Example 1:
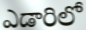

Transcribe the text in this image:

ఎడారిలో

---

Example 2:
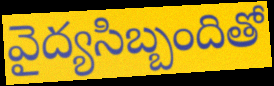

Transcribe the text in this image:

వైద్యసిబ్బందితో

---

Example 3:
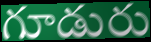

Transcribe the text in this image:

గూడురు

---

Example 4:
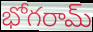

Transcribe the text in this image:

భోగరామ్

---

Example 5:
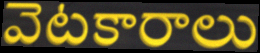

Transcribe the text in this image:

వెటకారాలు